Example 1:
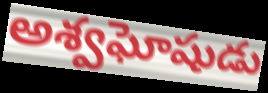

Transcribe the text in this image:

అశ్వఘోషుడు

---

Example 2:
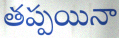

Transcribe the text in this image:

తప్పయినా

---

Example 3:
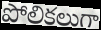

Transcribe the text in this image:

పోలికలుగా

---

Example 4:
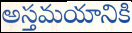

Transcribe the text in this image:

అస్తమయానికి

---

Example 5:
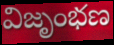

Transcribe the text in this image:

విజృంభణ